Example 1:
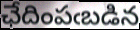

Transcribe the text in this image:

ఛేదింపఁబడిన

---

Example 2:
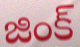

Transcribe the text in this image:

జింక్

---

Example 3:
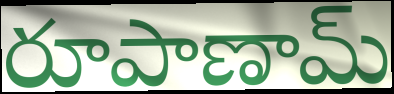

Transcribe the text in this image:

రూపాణామ్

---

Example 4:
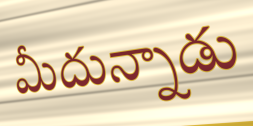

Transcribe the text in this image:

మీదున్నాడు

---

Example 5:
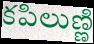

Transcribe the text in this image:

కపిలుణ్ణి